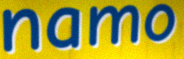
namo